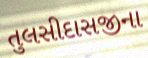
તુલસીદાસજીના